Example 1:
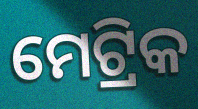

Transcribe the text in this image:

ମେଟ୍ରିକ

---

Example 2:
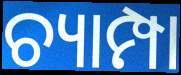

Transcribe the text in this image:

ଚ୍ୟାମ୍ପା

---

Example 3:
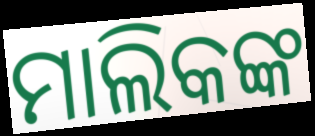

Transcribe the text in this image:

ମାଲିକଙ୍କ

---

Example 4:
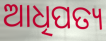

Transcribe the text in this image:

ଆଧିପତ୍ୟ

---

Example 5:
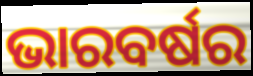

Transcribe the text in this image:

ଭାରବର୍ଷର